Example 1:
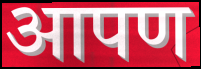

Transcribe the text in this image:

आपण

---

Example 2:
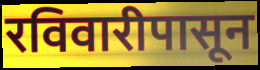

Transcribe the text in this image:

रविवारीपासून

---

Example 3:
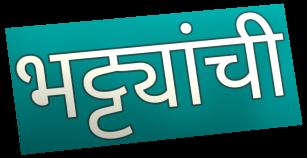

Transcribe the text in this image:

भट्ट्यांची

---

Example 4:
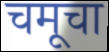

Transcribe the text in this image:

चमूचा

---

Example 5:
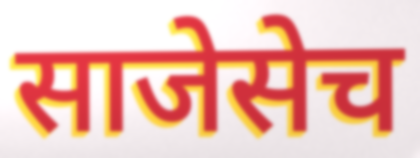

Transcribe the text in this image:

साजेसेच